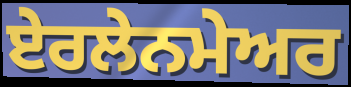
ਏਰਲੇਨਮੇਅਰ